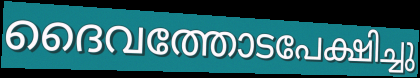
ദൈവത്തോടപേക്ഷിച്ചു